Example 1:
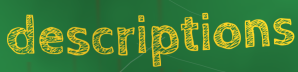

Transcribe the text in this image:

descriptions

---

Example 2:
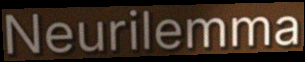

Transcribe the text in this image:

Neurilemma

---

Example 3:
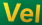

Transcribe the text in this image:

Vel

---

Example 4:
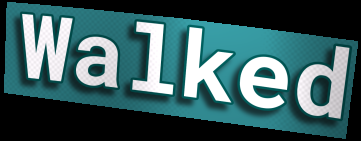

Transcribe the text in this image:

Walked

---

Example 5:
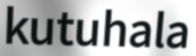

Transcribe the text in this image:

kutuhala